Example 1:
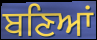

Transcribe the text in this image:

ਬਣਿਆਂ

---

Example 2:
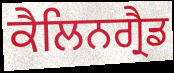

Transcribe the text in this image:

ਕੈਲਿਨਗ੍ਰੈਡ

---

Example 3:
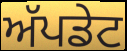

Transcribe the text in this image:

ਅੱਪਡੇਟ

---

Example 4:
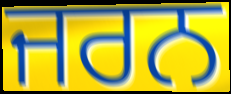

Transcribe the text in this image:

ਜਰਨ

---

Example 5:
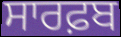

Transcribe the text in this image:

ਸਾਰਫ਼ਬ